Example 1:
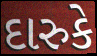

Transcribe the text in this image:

દારુકે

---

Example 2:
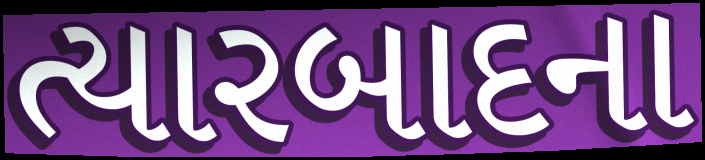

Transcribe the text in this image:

ત્યારબાદના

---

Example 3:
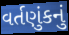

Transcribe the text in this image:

વર્તણુંકનું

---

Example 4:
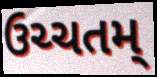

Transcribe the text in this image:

ઉચ્ચતમ્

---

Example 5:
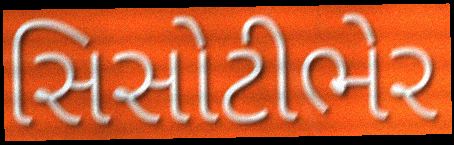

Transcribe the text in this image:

સિસોટીભેર